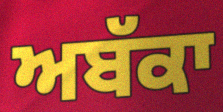
ਅਬੱਕਾ